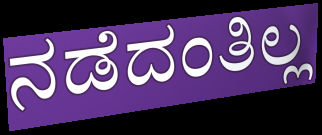
ನಡೆದಂತಿಲ್ಲ